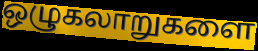
ஒழுகலாறுகளை